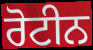
ਰੋਟੀਨ